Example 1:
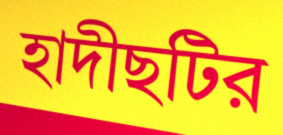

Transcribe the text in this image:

হাদীছটির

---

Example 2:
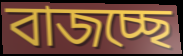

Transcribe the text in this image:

বাজচ্ছে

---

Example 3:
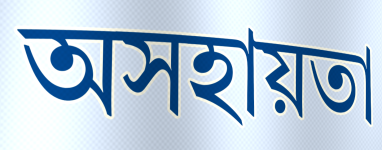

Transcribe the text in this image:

অসহায়তা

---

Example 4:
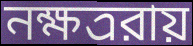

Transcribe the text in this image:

নক্ষত্ররায়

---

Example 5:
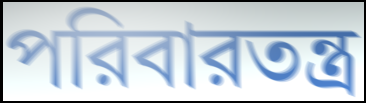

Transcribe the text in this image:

পরিবারতন্ত্র